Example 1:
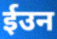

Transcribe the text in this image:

ईउन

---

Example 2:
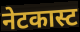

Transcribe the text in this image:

नेटकास्ट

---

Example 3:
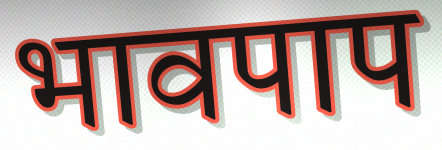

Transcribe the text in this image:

भावपाप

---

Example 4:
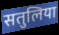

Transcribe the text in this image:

सतुलिया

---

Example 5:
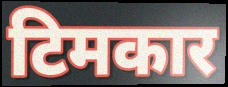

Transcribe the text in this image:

टिमकार